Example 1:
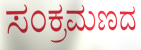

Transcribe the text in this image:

ಸಂಕ್ರಮಣದ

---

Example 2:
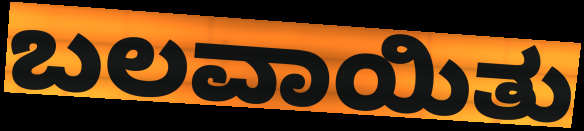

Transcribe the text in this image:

ಬಲವಾಯಿತು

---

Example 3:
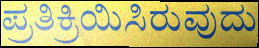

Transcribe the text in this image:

ಪ್ರತಿಕ್ರಿಯಿಸಿರುವುದು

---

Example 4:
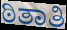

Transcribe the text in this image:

ಠಿತಾತಿ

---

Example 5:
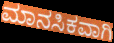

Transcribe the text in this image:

ಮಾನಸಿಕವಾಗಿ